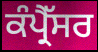
ਕੰਪ੍ਰੈੱਸਰ